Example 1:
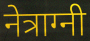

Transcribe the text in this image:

नेत्राग्नी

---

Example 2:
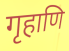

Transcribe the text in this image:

गृहाणि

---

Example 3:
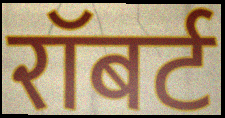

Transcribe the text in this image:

रॉबर्ट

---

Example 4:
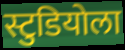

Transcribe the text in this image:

स्टुडियोला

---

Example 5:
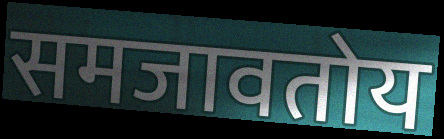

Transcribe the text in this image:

समजावतोय